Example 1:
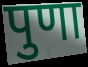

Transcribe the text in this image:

पुणा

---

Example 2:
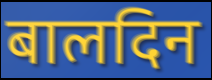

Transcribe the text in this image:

बालदिन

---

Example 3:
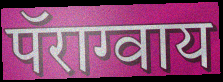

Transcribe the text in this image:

पॅराग्वाय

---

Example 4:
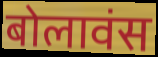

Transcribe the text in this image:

बोलावंस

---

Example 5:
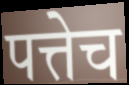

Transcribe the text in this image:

पत्तेच